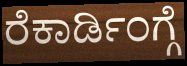
ರೆಕಾರ್ಡಿಂಗ್ಗೆ